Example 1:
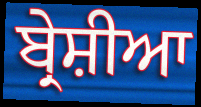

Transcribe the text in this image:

ਬ੍ਰੇਸ਼ੀਆ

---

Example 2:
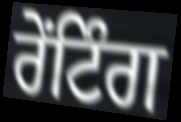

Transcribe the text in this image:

ਰੇਂਟਿੰਗ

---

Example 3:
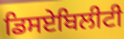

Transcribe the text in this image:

ਡਿਸਏਬਿਲੀਟੀ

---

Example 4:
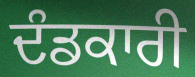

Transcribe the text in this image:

ਦੰਡਕਾਰੀ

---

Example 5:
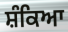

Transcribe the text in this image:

ਸ਼ੰਕਿਆ